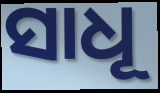
ସାଧୂ